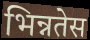
भिन्नतेस